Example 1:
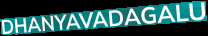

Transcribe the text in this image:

DHANYAVADAGALU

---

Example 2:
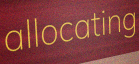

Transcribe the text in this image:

allocating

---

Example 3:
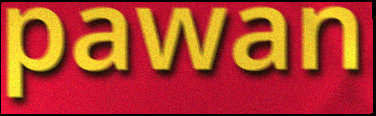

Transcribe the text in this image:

pawan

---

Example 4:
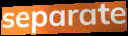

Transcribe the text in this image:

separate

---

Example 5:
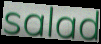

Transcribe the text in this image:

salad